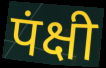
पंक्षी